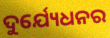
ଦୁର୍ଯ୍ୟେଧନର